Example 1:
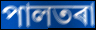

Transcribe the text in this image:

পালতৰা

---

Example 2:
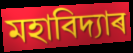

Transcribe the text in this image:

মহাবিদ্যাৰ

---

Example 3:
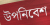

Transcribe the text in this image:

উপনিবেশ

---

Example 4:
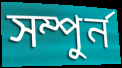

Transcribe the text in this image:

সম্পুৰ্ন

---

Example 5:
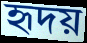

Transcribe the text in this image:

হৃদয়